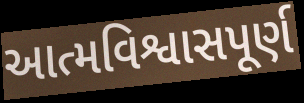
આત્મવિશ્વાસપૂર્ણ